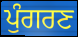
ਪੁੰਗਰਣ